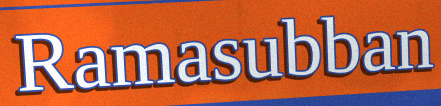
Ramasubban